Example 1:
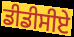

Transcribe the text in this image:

ਡੀਡੀਸੀਏ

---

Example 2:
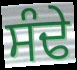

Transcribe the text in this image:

ਸੰਢੇ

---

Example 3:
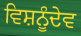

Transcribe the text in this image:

ਵਿਸ਼ਨੂੰਦੇਵ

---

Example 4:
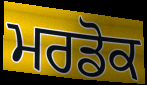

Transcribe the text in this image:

ਮਰਡੋਕ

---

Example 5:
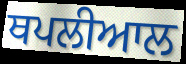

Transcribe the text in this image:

ਥਪਲੀਆਲ